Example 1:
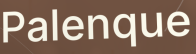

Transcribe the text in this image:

Palenque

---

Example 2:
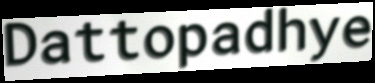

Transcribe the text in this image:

Dattopadhye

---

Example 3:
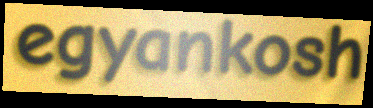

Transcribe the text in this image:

egyankosh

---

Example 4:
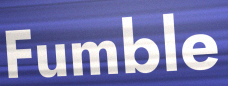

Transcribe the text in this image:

Fumble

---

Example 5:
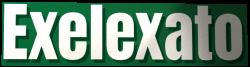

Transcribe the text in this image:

Exelexato